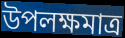
উপলক্ষমাত্র